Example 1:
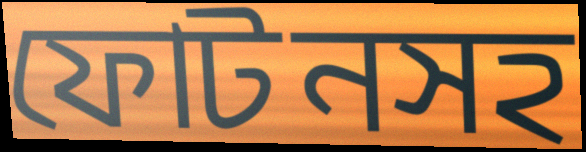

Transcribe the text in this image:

ফোটনসহ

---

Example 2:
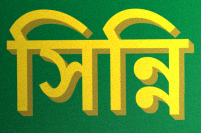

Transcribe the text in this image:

সিন্নি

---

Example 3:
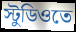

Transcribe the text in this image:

স্টুডিওতে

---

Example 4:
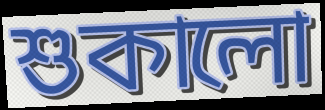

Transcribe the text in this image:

শুকালো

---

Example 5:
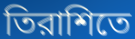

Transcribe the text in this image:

তিরাশিতে